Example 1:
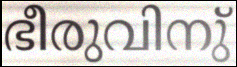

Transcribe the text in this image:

ഭീരുവിനു്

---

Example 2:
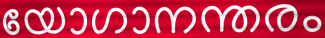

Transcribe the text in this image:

യോഗാനന്തരം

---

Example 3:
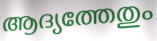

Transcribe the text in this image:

ആദ്യത്തേതും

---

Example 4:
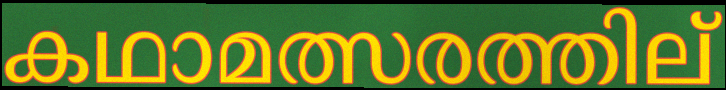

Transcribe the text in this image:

കഥാമത്സരത്തില്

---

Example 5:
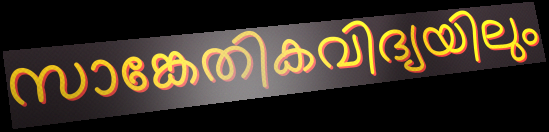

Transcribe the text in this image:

സാങ്കേതികവിദ്യയിലും